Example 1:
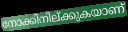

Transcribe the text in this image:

നോക്കിനില്ക്കുകയാണ്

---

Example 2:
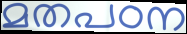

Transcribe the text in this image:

മതപഠന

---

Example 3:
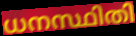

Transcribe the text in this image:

ധനസ്ഥിതി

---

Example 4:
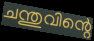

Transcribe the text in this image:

ചന്തുവിന്റെ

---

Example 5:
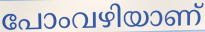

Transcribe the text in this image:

പോംവഴിയാണ്